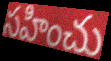
సహించు